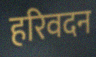
हरिवदन